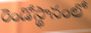
రెండోస్థానంలో